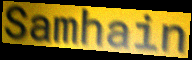
Samhain